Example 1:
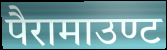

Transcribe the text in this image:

पैरामाउण्ट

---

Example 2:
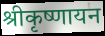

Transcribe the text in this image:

श्रीकृष्णायन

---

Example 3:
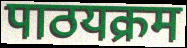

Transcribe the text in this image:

पाठयक्रम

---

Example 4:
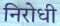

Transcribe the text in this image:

निरोधी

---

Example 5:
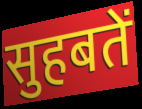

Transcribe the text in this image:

सुहबतें